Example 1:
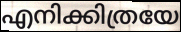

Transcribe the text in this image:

എനിക്കിത്രയേ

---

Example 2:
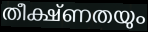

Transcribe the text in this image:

തീക്ഷ്‌ണതയും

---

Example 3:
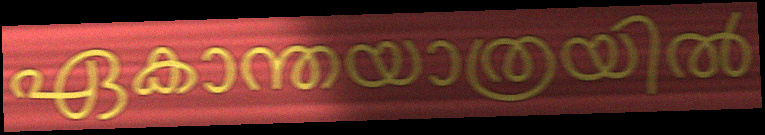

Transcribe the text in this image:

ഏകാന്തയാത്രയിൽ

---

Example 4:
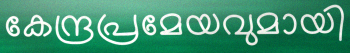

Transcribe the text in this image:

കേന്ദ്രപ്രമേയവുമായി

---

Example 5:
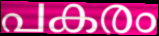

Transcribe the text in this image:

പകരം